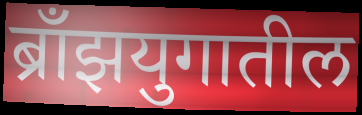
ब्राँझयुगातील